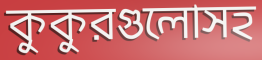
কুকুরগুলোসহ